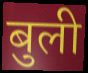
बुली